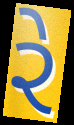
રે